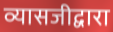
व्यासजीद्वारा